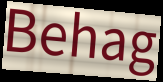
Behag